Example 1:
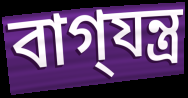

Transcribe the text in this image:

বাগ্‌যন্ত্র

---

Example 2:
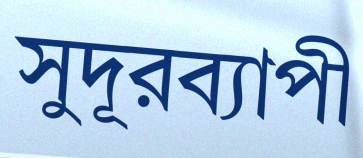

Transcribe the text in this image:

সুদূরব্যাপী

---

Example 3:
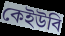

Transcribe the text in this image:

কেইউবি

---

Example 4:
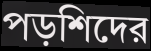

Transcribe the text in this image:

পড়শিদের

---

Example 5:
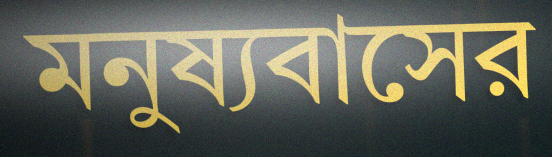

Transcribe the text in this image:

মনুষ্যবাসের